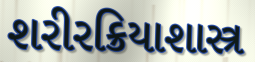
શરીરક્રિયાશાસ્ત્ર